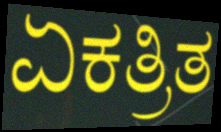
ಏಕತ್ರಿತ